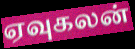
ஏவுகலன்